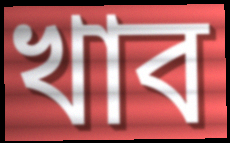
খাব